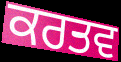
ਕਰਤਵ